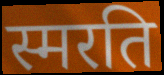
स्मरति